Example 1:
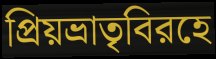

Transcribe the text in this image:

প্রিয়ভ্রাতৃবিরহে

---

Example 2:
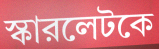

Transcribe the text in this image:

স্কারলেটকে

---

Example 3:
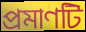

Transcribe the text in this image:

প্রমাণটি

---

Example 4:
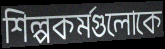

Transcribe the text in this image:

শিল্পকর্মগুলোকে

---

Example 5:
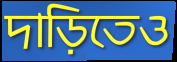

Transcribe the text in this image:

দাড়িতেও